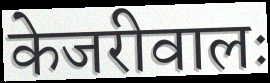
केजरीवालः